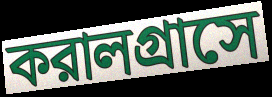
করালগ্রাসে